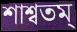
শাশ্বতম্